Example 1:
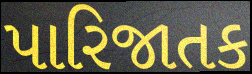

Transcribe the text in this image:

પારિજાતક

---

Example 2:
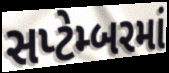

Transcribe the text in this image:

સપ્ટેમ્બરમાં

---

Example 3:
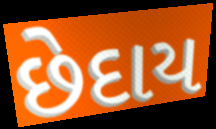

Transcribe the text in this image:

છેદાય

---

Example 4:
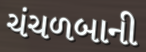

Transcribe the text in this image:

ચંચળબાની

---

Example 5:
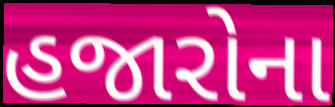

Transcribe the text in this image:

હજારોના